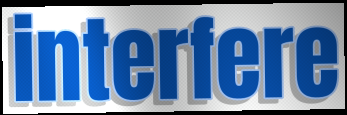
interfere